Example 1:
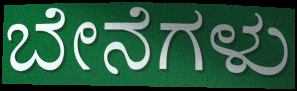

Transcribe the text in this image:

ಬೇನೆಗಳು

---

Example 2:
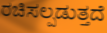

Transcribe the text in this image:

ರಚಿಸಲ್ಪಡುತ್ತದೆ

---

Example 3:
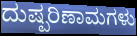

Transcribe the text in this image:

ದುಷ್ಪರಿಣಾಮಗಳು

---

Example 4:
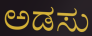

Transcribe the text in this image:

ಅಡಸು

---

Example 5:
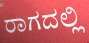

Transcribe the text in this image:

ರಾಗದಲ್ಲಿ